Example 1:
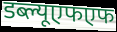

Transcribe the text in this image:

डब्ल्यूएफएफ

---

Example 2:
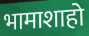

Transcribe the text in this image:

भामाशाहो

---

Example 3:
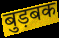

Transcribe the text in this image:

बुड़बक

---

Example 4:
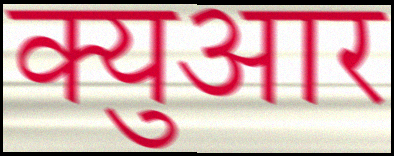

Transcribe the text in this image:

क्युआर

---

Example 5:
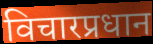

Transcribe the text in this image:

विचारप्रधान